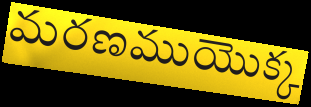
మరణముయొక్క